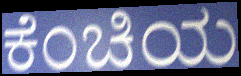
ಕೆಂಚಿಯ